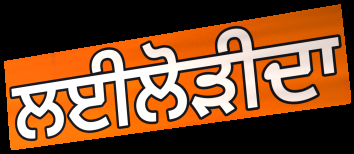
ਲਈਲੋੜੀਦਾ